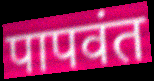
पापवंत